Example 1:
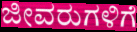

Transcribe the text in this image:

ಜೀವರುಗಳಿಗೆ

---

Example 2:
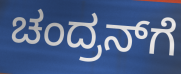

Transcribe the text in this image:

ಚಂದ್ರನ್‌ಗೆ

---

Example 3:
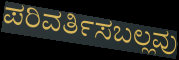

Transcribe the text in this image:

ಪರಿವರ್ತಿಸಬಲ್ಲವು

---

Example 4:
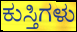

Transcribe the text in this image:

ಕುಸ್ತಿಗಳು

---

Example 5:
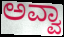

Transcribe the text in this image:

ಅವ್ವಾ